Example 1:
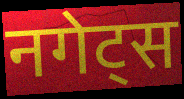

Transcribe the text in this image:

नगेट्स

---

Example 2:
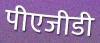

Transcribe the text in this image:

पीएजीडी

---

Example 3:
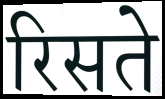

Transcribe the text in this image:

रिसते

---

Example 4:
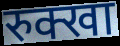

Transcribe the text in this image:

रुक्खा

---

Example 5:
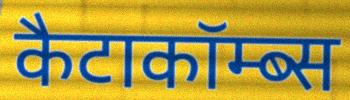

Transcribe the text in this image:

कैटाकॉम्ब्स